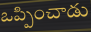
ఒప్పించాడు